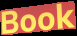
Book